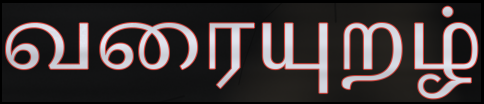
வரையுறழ்